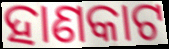
ହାଣକାଟ